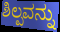
ಶಿಲ್ಪವನ್ನು